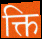
क्ति